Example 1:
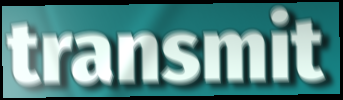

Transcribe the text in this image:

transmit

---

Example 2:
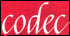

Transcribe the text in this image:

codec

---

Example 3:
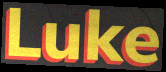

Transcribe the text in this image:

Luke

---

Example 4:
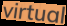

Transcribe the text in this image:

virtual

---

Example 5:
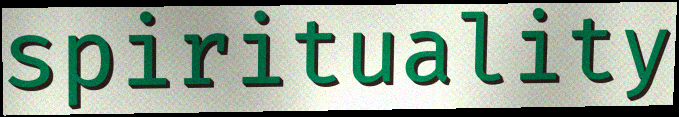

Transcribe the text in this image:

spirituality